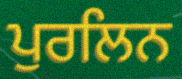
ਪੁਰਲਿਨ